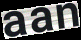
aan